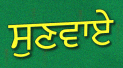
ਸੁਣਵਾਏ